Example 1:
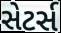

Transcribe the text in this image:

સેટર્સ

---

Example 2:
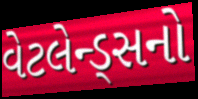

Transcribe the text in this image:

વેટલેન્ડ્સનો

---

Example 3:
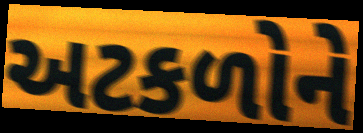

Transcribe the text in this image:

અટકળોને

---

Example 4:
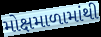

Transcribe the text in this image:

મોક્ષમાળામાંથી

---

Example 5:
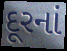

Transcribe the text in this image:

દૂરનાં